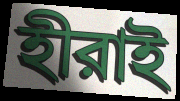
হীরাই